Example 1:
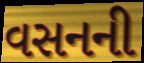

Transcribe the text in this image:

વસનની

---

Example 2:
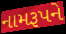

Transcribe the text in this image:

નામરૂપને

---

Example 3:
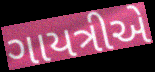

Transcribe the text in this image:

ગાયત્રીએ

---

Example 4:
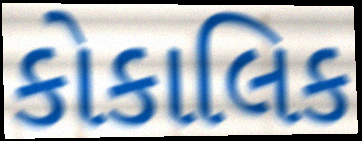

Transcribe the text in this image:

કોકાલિક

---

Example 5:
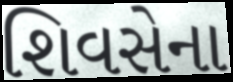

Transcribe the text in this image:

શિવસેના